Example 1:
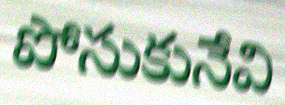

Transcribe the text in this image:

పోసుకునేవి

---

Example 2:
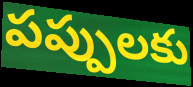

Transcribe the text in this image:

పప్పులకు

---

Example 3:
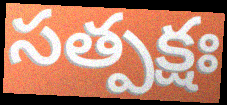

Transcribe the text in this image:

సత్పక్షః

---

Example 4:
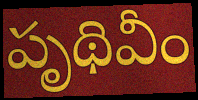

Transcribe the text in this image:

పృథివీం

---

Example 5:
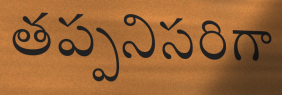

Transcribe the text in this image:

తప్పనిసరిగా